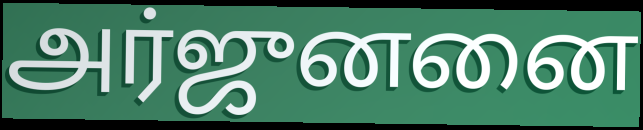
அர்ஜுனனை